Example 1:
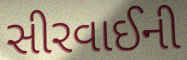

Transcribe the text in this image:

સીરવાઈની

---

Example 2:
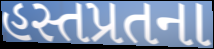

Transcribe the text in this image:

હસ્તપ્રતના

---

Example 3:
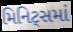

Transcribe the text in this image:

મિનિટ્સમાં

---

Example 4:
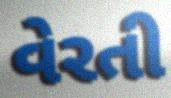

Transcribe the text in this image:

વેરતી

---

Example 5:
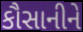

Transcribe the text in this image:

કૌસાનીને